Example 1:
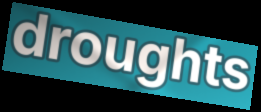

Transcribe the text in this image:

droughts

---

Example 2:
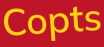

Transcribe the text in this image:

Copts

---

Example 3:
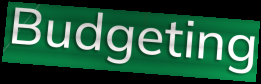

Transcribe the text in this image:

Budgeting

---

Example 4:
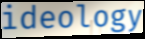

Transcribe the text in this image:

ideology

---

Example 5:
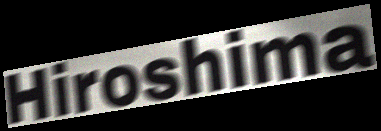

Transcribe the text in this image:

Hiroshima